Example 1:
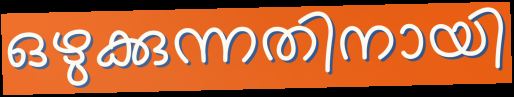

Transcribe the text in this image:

ഒഴുക്കുന്നതിനായി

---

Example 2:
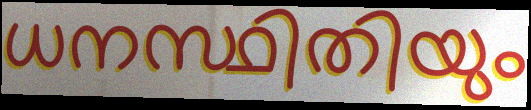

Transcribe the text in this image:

ധനസ്ഥിതിയും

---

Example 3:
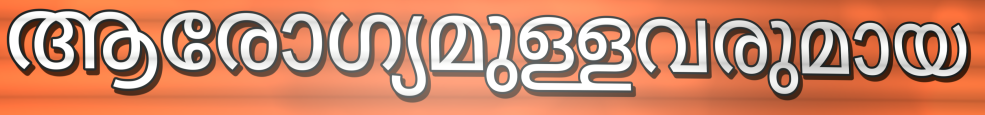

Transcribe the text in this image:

ആരോഗ്യമുള്ളവരുമായ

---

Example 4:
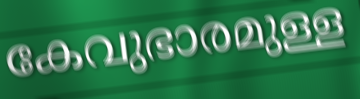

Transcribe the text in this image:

കേവുഭാരമുള്ള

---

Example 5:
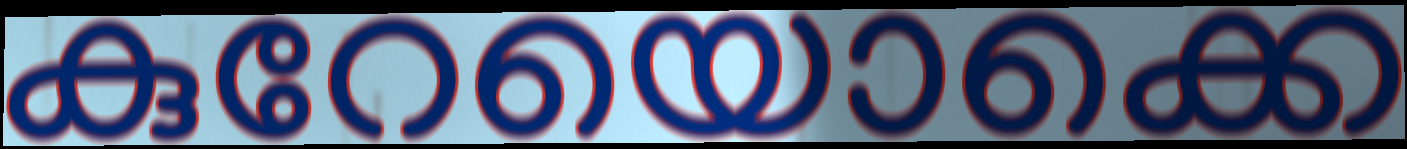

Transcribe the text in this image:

കുറേയൊക്കെ